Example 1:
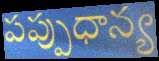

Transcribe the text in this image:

పప్పుధాన్య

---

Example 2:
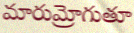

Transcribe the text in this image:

మారుమ్రోగుతూ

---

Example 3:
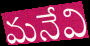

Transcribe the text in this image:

మనేవి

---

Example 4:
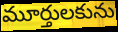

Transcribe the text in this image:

మూర్తులకును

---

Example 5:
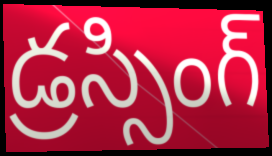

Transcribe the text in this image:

డ్రస్సింగ్